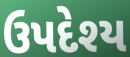
ઉપદેશ્ય